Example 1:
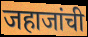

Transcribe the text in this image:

जहाजांची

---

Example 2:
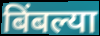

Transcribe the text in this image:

बिंबल्या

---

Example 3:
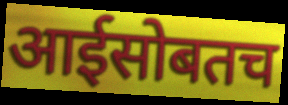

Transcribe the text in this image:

आईसोबतच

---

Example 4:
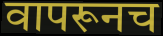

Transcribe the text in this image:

वापरूनच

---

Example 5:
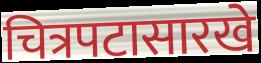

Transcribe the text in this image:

चित्रपटासारखे